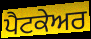
ਪੈਟਕੇਅਰ